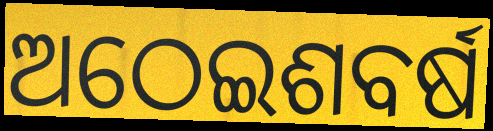
ଅଠେଇଶବର୍ଷ